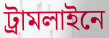
ট্রামলাইনে